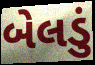
બેલડું